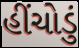
હીંચોડું